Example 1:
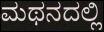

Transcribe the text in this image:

ಮಥನದಲ್ಲಿ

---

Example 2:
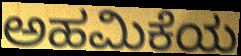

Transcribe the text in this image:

ಅಹಮಿಕೆಯ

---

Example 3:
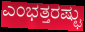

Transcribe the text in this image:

ಎಂಭತ್ತರಷ್ಟು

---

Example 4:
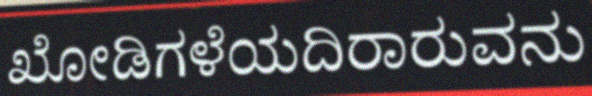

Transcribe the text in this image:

ಖೋಡಿಗಳೆಯದಿರಾರುವನು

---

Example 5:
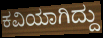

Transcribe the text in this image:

ಕವಿಯಾಗಿದ್ದು